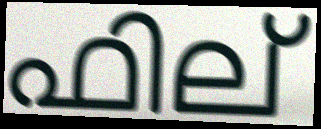
ഫില്